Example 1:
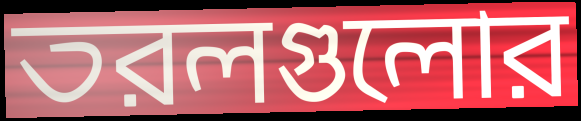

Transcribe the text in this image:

তরলগুলোর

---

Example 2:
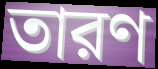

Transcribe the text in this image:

তারণ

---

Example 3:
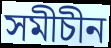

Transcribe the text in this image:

সমীচীন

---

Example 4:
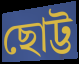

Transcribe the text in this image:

ছোট্ট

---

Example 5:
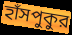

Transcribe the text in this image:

হাঁসপুকুর